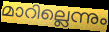
മാറില്ലെന്നും